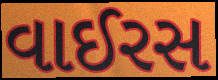
વાઈરસ